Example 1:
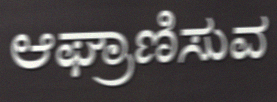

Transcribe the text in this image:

ಆಘ್ರಾಣಿಸುವ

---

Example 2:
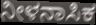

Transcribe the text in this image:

ನೀಳನಾಸಿಕ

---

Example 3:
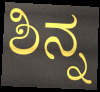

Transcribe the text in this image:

ಶಿನ್ನ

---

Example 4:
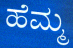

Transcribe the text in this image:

ಹೆಮ್ಮ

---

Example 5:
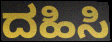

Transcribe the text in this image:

ದಹಿಸಿ